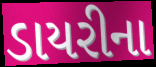
ડાયરીના